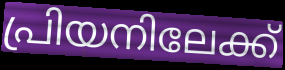
പ്രിയനിലേക്ക്